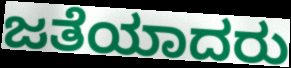
ಜತೆಯಾದರು